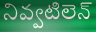
నివ్వటిలెన్